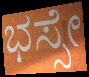
ಭಸ್ಸೇ